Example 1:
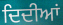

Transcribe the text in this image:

ਦਿਦੀਆਂ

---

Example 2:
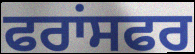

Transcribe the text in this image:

ਫਰਾਂਸਫਰ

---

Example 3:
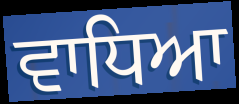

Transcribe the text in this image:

ਵਾਧਿਆ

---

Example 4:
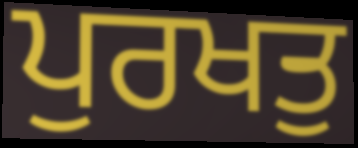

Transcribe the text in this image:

ਪੁਰਖਤੁ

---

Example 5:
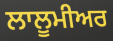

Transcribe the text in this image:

ਲਾਲੂਮੀਅਰ